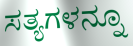
ಸತ್ಯಗಳನ್ನೂ